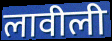
लावीली